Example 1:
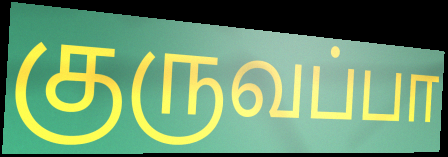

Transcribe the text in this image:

குருவப்பா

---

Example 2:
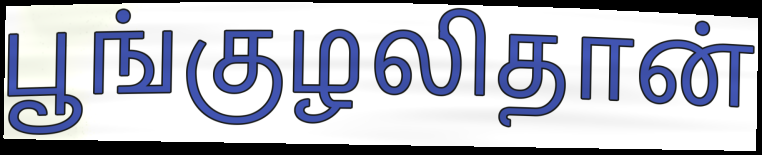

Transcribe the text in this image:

பூங்குழலிதான்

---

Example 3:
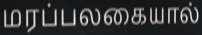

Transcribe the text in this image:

மரப்பலகையால்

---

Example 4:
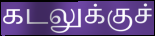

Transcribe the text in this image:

கடலுக்குச்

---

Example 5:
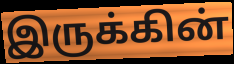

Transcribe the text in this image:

இருக்கின்